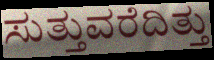
ಸುತ್ತುವರೆದಿತ್ತು